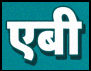
एबी